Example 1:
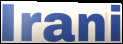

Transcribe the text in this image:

Irani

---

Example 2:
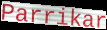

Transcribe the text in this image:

Parrikar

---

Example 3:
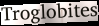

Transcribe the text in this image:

Troglobites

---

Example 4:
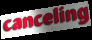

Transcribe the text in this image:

canceling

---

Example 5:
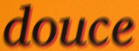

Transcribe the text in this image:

douce